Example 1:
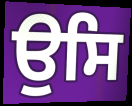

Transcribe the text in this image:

ਉਸਿ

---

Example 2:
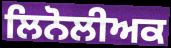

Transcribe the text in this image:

ਲਿਨੋਲੀਅਕ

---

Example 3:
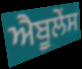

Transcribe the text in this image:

ਐਬੂਲੇਂਸ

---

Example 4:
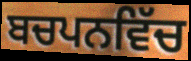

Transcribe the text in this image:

ਬਚਪਨਵਿੱਚ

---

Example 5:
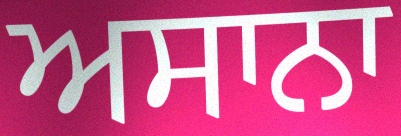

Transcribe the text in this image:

ਅਸਾਨਾ